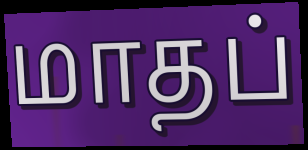
மாதப்